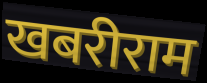
खबरीराम